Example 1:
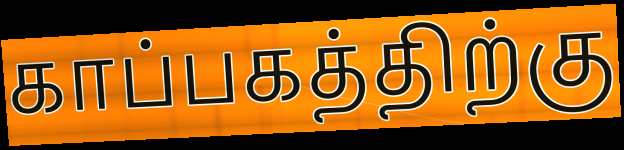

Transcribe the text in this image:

காப்பகத்திற்கு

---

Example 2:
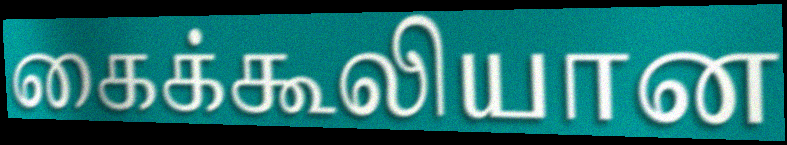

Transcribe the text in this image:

கைக்கூலியான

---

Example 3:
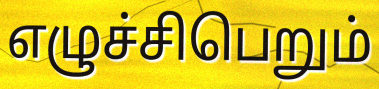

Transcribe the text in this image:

எழுச்சிபெறும்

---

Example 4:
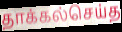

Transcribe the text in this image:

தாக்கல்செய்த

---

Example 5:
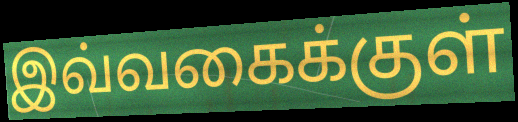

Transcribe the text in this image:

இவ்வகைக்குள்